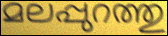
മലപ്പുറത്തു